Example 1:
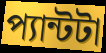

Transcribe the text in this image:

প্যান্টটা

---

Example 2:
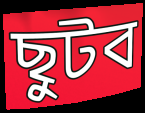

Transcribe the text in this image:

ছুটব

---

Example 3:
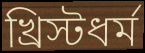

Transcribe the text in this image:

খ্রিস্টধর্ম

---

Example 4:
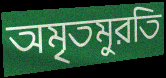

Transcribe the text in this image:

অমৃতমুরতি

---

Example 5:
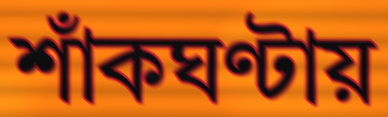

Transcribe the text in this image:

শাঁকঘণ্টায়